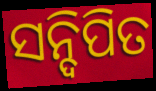
ସନ୍ଦିପିତ